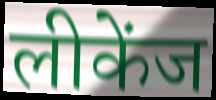
लीकेंज